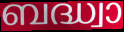
ബദ്ധ്വാ